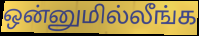
ஒன்னுமில்லீங்க